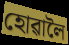
হোৱালৈ